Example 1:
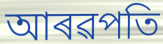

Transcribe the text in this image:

আৰৱপতি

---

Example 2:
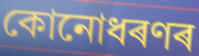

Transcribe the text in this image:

কোনোধৰণৰ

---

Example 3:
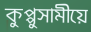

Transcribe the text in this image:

কুপ্পুসামীয়ে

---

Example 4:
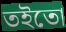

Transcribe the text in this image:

তইতো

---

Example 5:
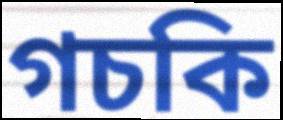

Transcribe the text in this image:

গচকি